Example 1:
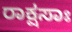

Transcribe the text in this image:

ರಾಕ್ಷಸಾಃ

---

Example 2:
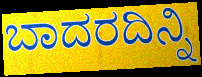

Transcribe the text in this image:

ಬಾದರದಿನ್ನಿ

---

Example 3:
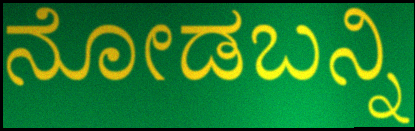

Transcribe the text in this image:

ನೋಡಬನ್ನಿ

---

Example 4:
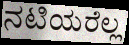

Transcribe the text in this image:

ನಟಿಯರೆಲ್ಲ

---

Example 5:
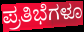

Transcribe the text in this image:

ಪ್ರತಿಭೆಗಳೂ